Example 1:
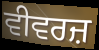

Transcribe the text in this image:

ਵੀਵਰਜ਼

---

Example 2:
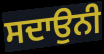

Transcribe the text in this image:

ਸਦਾਉਨੀ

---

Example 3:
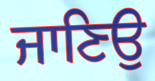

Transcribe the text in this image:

ਜਾਣਿਉ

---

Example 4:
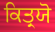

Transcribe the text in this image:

ਕਿਤ੍ਰਯੋ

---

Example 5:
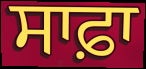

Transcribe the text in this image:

ਸਾਫ਼ਾ